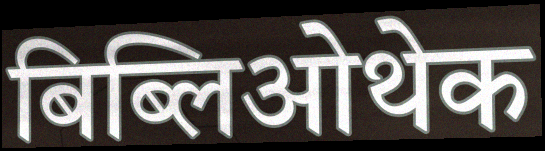
बिब्लिओथेक